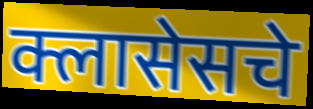
क्लासेसचे